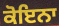
ਕੋਇਨਾ